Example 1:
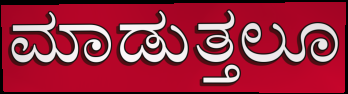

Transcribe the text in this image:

ಮಾಡುತ್ತಲೂ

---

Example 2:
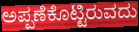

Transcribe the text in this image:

ಅಪ್ಪಣೆಕೊಟ್ಟಿರುವದು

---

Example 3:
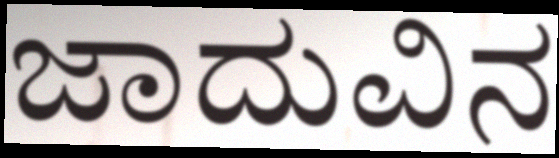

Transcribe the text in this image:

ಜಾದುವಿನ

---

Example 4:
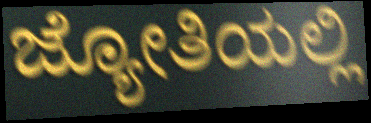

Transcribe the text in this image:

ಜ್ಯೋತಿಯಲ್ಲಿ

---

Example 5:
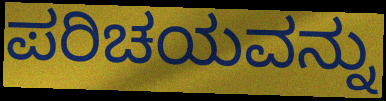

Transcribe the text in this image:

ಪರಿಚಯವನ್ನು